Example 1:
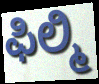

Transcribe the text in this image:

ಫಿಲ್ಮಿ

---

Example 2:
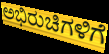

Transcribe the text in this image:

ಅಭಿರುಚಿಗಳಿಗೆ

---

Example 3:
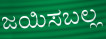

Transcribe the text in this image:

ಜಯಿಸಬಲ್ಲ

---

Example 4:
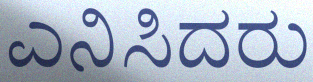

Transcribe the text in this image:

ಎನಿಸಿದರು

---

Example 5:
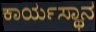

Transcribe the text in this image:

ಕಾರ್ಯಸ್ಥಾನ